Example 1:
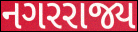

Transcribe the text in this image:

નગરરાજ્ય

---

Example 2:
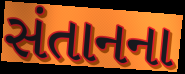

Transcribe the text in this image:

સંતાનના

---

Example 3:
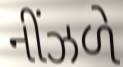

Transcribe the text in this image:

નીંઝળે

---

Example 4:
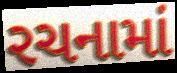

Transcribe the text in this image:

રચનામાં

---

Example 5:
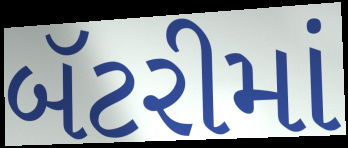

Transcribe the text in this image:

બૅટરીમાં